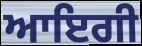
ਆਇਗੀ